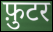
फ़ुटर